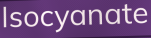
Isocyanate